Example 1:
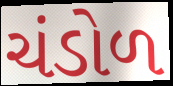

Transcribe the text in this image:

ચંડોળ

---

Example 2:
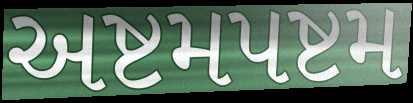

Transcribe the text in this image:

અષ્ટમપષ્ટમ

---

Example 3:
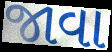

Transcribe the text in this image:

જાવા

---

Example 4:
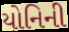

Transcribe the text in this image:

યોનિની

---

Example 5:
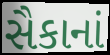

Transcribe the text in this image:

સૈકાનાં